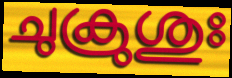
ചുക്രുശുഃ